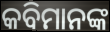
କବିମାନଙ୍କ